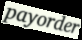
payorder